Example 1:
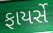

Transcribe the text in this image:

ફાયર્સે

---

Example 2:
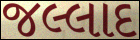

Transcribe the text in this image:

જલ્લાદ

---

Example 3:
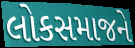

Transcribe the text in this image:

લોકસમાજને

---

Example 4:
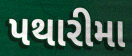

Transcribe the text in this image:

પથારીમા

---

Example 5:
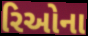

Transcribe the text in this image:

રિઓના